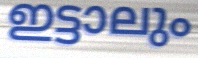
ഇട്ടാലും